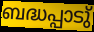
ബദ്ധപ്പാടു്